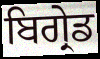
ਬਿਗ੍ਰੇਡ